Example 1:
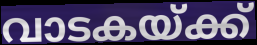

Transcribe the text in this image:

വാടകയ്ക്ക്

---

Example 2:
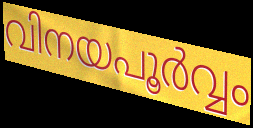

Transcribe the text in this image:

വിനയപൂർവ്വം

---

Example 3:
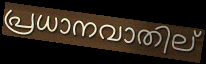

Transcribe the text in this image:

പ്രധാനവാതില്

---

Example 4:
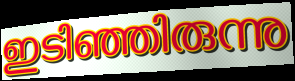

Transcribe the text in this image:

ഇടിഞ്ഞിരുന്നു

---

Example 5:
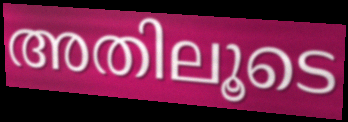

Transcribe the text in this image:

അതിലൂടെ